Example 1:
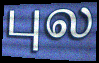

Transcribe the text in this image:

புல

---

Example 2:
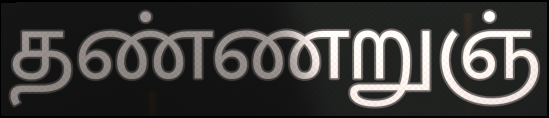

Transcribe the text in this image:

தண்ணறுஞ்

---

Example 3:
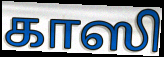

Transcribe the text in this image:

காஸி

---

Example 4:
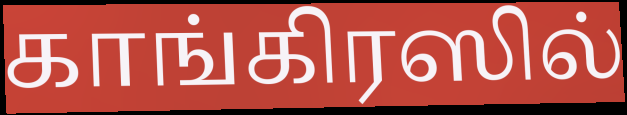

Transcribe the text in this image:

காங்கிரஸில்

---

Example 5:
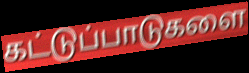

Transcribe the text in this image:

கட்டுப்பாடுகளை